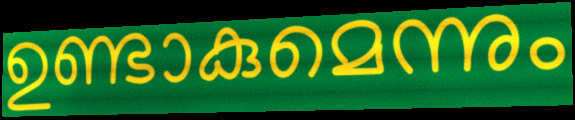
ഉണ്ടാകുമെന്നും